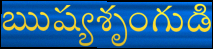
ఋష్యశృంగుడి